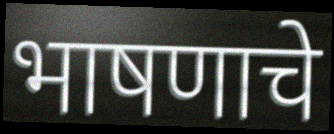
भाषणाचे